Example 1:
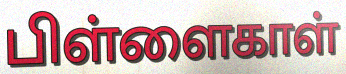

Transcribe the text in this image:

பிள்ளைகாள்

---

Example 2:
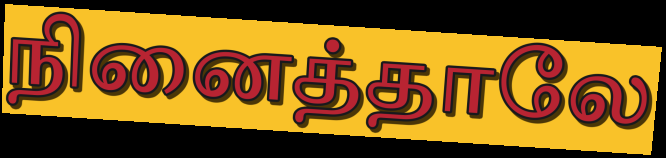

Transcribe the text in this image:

நினைத்தாலே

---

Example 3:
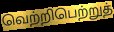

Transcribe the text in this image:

வெற்றிபெற்றுத்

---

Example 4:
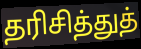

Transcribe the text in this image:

தரிசித்துத்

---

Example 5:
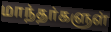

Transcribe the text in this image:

மாந்தர்களுள்